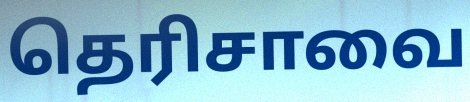
தெரிசாவை